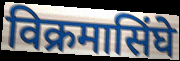
विक्रमासिंघे